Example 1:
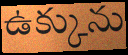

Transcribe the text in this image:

ఉక్కును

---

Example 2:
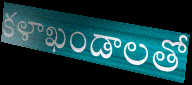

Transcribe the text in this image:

కళాఖండాలతో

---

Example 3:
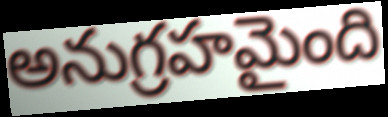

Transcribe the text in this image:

అనుగ్రహమైంది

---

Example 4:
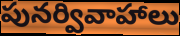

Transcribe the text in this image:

పునర్వివాహాలు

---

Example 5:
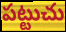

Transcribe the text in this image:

పట్టుచు